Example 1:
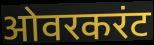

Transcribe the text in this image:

ओवरकरंट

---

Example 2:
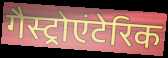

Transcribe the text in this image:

गैस्ट्रोएंटेरिक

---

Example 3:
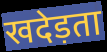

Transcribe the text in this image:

खदेड़ता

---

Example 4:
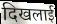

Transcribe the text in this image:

दिखलाई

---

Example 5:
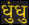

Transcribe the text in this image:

धुंधु